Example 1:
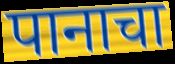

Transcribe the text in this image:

पानाचा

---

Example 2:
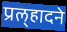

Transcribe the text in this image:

प्रल्हादने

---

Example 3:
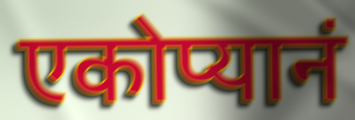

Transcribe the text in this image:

एकोप्यानं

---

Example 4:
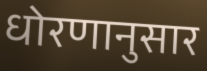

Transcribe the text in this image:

धोरणानुसार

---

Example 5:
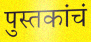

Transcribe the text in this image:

पुस्तकांचं